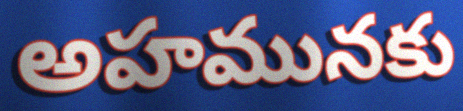
అహమునకు